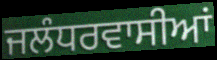
ਜਲੰਧਰਵਾਸੀਆਂ